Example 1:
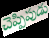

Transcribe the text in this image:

చెప్పిపుడు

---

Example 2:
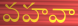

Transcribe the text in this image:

వహవా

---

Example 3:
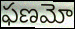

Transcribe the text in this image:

ఫణమో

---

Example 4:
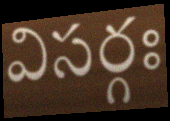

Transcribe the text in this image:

విసర్గః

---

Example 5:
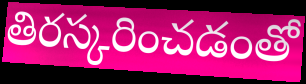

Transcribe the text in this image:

తిరస్కరించడంతో